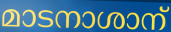
മാടനാശാന്